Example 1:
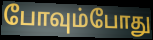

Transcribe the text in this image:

போவும்போது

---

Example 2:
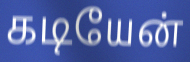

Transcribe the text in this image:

கடியேன்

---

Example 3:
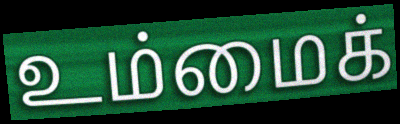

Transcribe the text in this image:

உம்மைக்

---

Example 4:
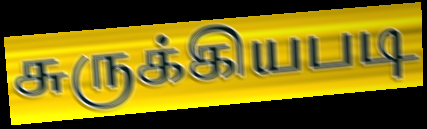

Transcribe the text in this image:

சுருக்கியபடி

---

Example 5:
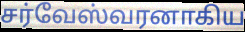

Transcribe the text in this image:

சர்வேஸ்வரனாகிய